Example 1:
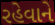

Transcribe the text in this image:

રહેવાને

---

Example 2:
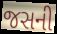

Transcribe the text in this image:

જસની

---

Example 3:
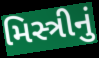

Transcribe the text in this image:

મિસ્ત્રીનું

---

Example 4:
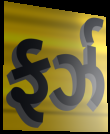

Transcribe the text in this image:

ફર્ઝ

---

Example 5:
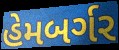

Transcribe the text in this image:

હેમબર્ગર